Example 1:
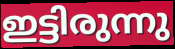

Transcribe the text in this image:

ഇട്ടിരുന്നു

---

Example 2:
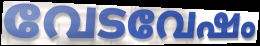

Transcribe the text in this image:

വേടവേഷം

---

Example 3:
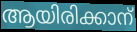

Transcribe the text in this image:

ആയിരിക്കാന്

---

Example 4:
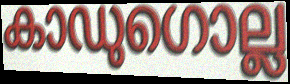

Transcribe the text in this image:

കാഡുഗൊല്ല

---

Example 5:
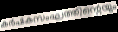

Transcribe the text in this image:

കർഷകസംഘത്തിന്റെയും